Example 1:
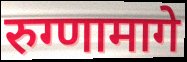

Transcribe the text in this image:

रुग्णामागे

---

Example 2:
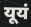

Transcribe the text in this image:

यूयं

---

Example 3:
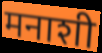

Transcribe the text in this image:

मनाशी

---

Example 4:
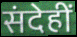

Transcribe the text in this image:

संदेहीं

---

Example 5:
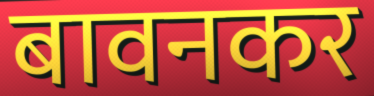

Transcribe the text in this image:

बावनकर